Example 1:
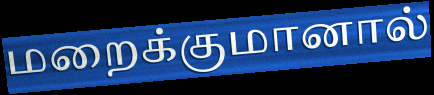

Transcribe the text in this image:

மறைக்குமானால்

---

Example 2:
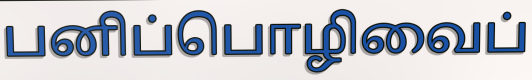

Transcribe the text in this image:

பனிப்பொழிவைப்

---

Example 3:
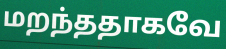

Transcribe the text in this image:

மறந்ததாகவே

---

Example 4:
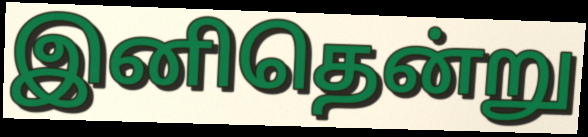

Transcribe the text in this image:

இனிதென்று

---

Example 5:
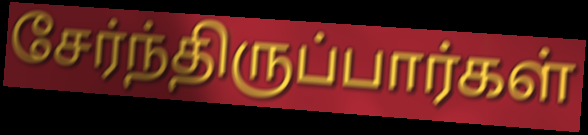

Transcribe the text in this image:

சேர்ந்திருப்பார்கள்